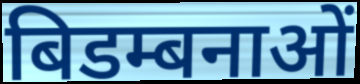
बिडम्बनाओं